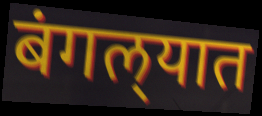
बंगल्यात